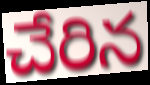
చేరిన